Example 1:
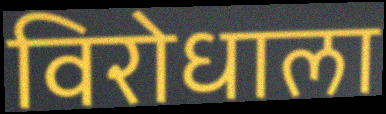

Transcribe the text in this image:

विरोधाला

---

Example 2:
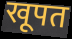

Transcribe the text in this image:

खूपत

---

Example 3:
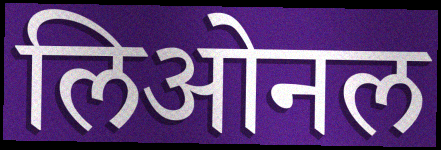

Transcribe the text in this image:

लिओनल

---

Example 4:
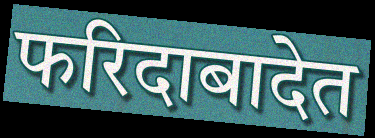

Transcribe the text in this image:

फरिदाबादेत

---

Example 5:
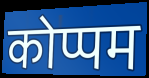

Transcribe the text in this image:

कोप्पम